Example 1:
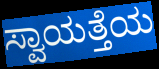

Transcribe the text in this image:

ಸ್ವಾಯತ್ತೆಯ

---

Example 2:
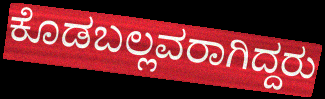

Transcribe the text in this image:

ಕೊಡಬಲ್ಲವರಾಗಿದ್ದರು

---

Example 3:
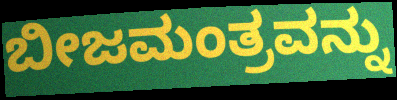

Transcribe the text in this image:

ಬೀಜಮಂತ್ರವನ್ನು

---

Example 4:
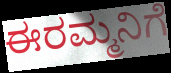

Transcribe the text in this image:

ಈರಮ್ಮನಿಗೆ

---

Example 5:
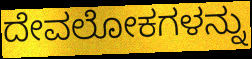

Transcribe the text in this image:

ದೇವಲೋಕಗಳನ್ನು